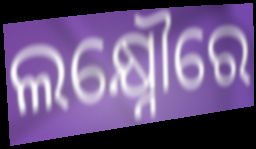
ଲକ୍ଷ୍ନୌରେ